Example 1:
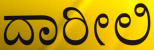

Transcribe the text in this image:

ದಾರೀಲಿ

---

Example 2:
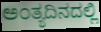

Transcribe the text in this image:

ಅಂತ್ಯದಿನದಲ್ಲಿ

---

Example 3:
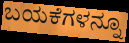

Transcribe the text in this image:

ಬಯಕೆಗಳನ್ನೂ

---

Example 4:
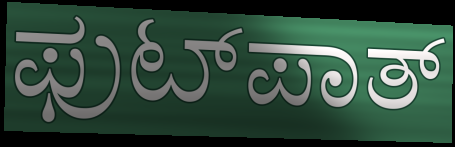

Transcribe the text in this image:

ಫುಟ್‍ಪಾತ್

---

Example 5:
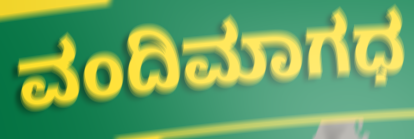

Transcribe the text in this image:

ವಂದಿಮಾಗಧ